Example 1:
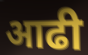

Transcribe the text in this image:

आढी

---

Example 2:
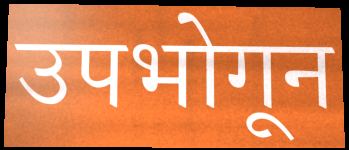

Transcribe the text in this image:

उपभोगून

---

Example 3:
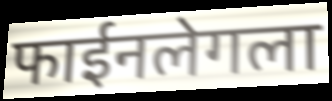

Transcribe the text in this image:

फाईनलेगला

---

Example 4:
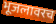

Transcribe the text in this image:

भूजलावरच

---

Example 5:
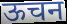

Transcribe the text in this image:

ऊचन